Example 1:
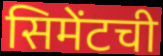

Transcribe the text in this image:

सिमेंटची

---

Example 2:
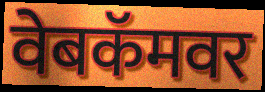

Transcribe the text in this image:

वेबकॅमवर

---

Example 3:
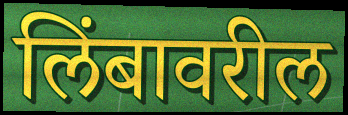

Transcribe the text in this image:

लिंबावरील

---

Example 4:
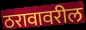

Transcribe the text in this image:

ठरावावरील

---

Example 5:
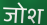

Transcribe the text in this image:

जोश